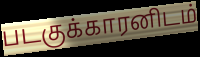
படகுக்காரனிடம்